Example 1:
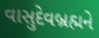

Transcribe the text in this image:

વાસુદેવબ્રહ્મને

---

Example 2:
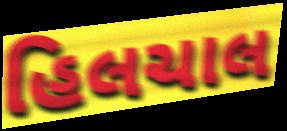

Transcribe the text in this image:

હિલચાલ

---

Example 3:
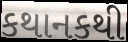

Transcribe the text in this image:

કથાનકથી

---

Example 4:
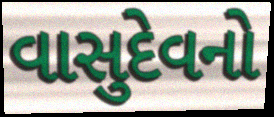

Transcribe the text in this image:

વાસુદેવનો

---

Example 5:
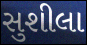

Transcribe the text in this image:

સુશીલા